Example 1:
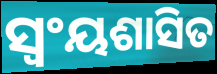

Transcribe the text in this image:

ସ୍ୱଂୟଶାସିତ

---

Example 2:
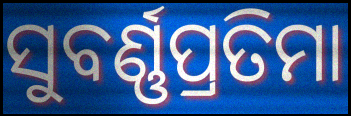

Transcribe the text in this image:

ସୁବର୍ଣ୍ଣପ୍ରତିମା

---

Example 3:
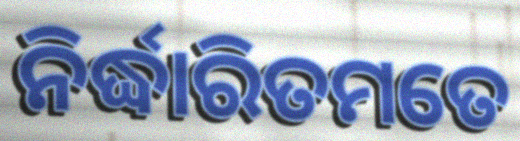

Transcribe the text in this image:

ନିର୍ଦ୍ଧାରିତମତେ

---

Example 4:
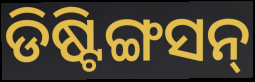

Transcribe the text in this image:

ଡିଷ୍ଟିଙ୍ଗସନ୍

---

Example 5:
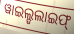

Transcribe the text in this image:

ୱାଇଲ୍ଡଲାଇଫ୍